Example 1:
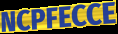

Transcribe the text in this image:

NCPFECCE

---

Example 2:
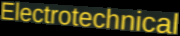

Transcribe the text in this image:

Electrotechnical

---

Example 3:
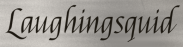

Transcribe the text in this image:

Laughingsquid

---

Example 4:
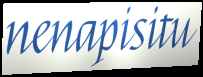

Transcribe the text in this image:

nenapisitu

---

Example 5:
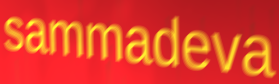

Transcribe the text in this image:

sammadeva